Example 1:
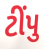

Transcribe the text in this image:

ટીંપુ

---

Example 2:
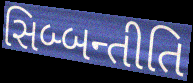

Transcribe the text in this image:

સિબ્બન્તીતિ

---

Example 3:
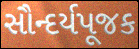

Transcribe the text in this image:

સૌન્દર્યપૂજક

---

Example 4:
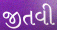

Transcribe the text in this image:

જીતવી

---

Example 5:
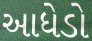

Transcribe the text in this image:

આધેડો